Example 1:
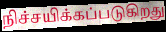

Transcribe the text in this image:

நிச்சயிக்கப்படுகிறது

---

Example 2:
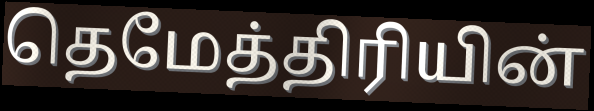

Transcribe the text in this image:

தெமேத்திரியின்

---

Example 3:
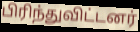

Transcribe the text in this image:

பிரிந்துவிட்டனர்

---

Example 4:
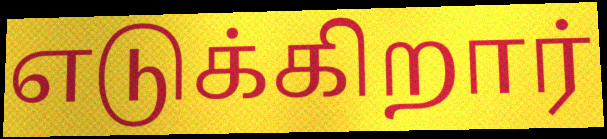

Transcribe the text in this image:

எடுக்கிறார்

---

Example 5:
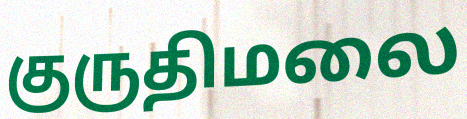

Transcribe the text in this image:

குருதிமலை